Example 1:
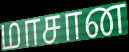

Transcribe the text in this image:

மாசான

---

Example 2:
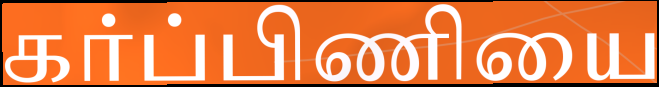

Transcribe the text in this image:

கர்ப்பிணியை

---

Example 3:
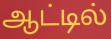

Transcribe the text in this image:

ஆட்டில்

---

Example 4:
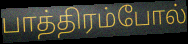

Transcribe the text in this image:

பாத்திரம்போல்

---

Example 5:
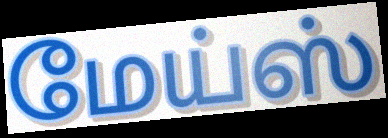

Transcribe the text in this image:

மேய்ஸ்